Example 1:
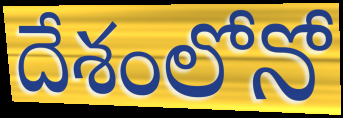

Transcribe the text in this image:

దేశంలోనో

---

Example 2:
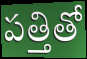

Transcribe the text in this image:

పత్తితో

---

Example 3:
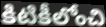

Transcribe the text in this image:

కిటికీలోంచి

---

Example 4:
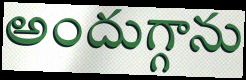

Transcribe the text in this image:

అందుగ్గాను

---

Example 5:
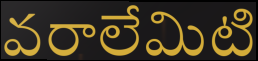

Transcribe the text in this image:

వరాలేమిటి